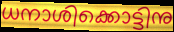
ധനാശിക്കൊട്ടിനു